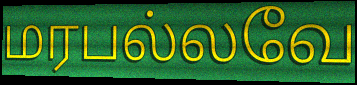
மரபல்லவே